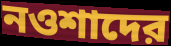
নওশাদের